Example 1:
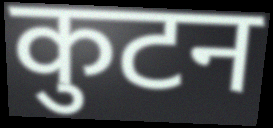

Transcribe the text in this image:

कुटन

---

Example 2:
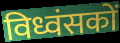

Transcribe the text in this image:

विध्वंसकों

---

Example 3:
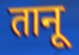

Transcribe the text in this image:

तानू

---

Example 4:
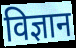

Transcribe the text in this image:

विज्ञान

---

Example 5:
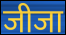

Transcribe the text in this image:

जीजा